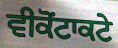
ਵੀਕੋਂਟਾਕਟੇ